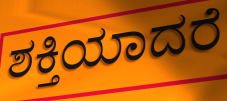
ಶಕ್ತಿಯಾದರೆ